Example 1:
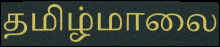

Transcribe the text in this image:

தமிழ்மாலை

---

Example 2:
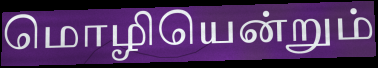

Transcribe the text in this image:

மொழியென்றும்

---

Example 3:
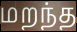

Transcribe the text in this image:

மறந்த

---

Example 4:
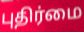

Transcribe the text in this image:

புதிர்மை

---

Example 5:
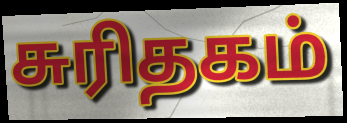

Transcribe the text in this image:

சுரிதகம்